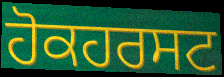
ਹੋਕਹਰਸਟ